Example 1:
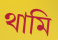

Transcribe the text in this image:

থামি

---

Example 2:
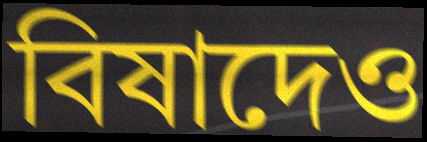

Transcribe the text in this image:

বিষাদেও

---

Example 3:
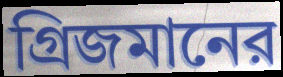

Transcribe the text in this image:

গ্রিজমানের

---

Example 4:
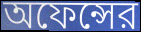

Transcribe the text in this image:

অফেন্সের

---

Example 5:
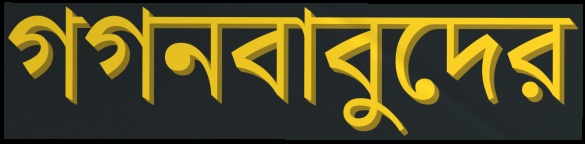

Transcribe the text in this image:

গগনবাবুদের